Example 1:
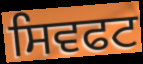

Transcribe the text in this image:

ਸਿਵਫਟ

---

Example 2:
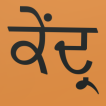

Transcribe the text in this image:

ਕੇਂਦ੍ਰ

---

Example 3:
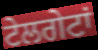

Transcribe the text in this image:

ਟੇਲਗੇਟਾਂ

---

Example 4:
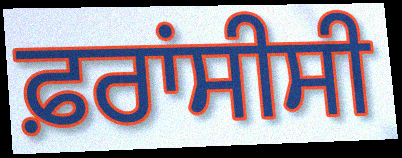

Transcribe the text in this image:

ਫ਼ਰਾਂਸੀਸੀ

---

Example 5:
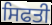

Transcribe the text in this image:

ਸਿਫਤੀ